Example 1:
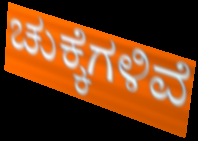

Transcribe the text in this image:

ಚುಕ್ಕೆಗಳಿವೆ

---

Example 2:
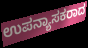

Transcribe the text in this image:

ಉಪನ್ಯಾಸಕರಾದ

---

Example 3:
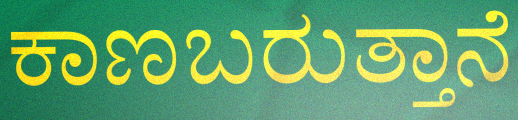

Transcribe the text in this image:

ಕಾಣಬರುತ್ತಾನೆ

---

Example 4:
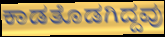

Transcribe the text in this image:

ಕಾಡತೊಡಗಿದ್ದವು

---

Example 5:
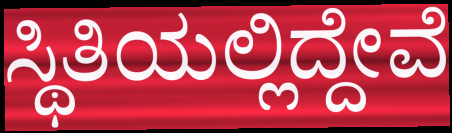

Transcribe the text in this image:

ಸ್ಥಿತಿಯಲ್ಲಿದ್ದೇವೆ